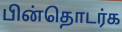
பின்தொடர்க